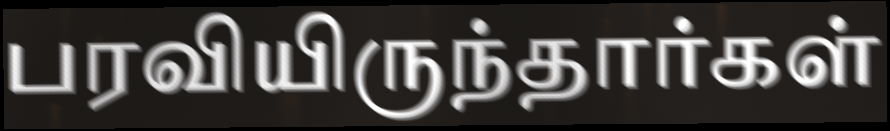
பரவியிருந்தார்கள்